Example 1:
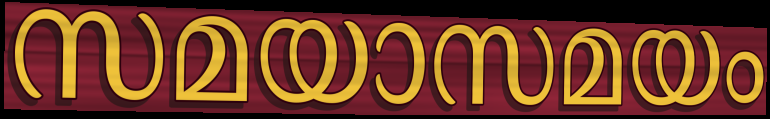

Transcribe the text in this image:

സമയാസമയം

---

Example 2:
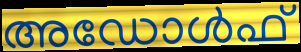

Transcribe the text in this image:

അഡോൾഫ്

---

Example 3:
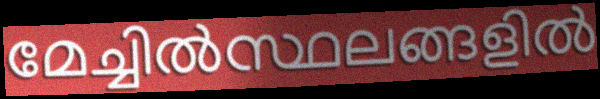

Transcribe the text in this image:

മേച്ചിൽസ്ഥലങ്ങളിൽ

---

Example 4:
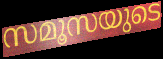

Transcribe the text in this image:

സമൂസയുടെ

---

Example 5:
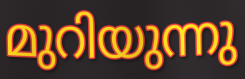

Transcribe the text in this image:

മുറിയുന്നു